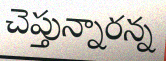
చెప్తున్నారన్న